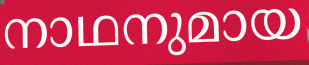
നാഥനുമായ